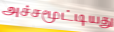
அச்சமூட்டியது